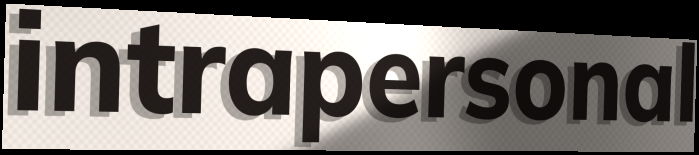
intrapersonal